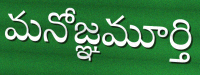
మనోజ్ఞమూర్తి